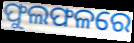
ଫୁଲଫଳରେ